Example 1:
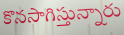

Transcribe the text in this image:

కొనసాగిస్తున్నారు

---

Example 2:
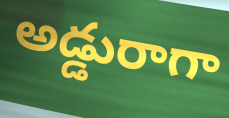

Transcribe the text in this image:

అడ్డురాగా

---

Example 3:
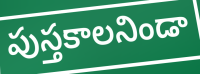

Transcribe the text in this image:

పుస్తకాలనిండా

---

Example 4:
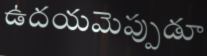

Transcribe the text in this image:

ఉదయమెప్పుడూ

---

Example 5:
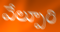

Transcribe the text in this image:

వేల్పూరి